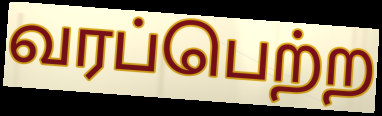
வரப்பெற்ற